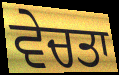
ਵੇਚਤਾ